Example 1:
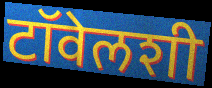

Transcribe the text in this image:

टॉवेलशी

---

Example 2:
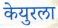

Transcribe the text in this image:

केयुरला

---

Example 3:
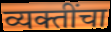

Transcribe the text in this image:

व्यक्‍तींचा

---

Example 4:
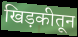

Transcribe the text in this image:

खिड़कीतून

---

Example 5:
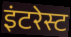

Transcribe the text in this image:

इंटरेस्ट